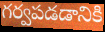
గర్వపడడానికి